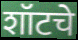
शॉटचे